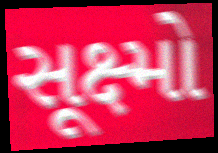
સૂક્ષ્મો